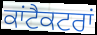
ਕਾਂਟੈਕਟਰਾਂ